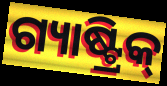
ଗ୍ୟାଷ୍ଟ୍ରିକ୍